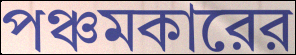
পঞ্চমকারের